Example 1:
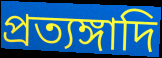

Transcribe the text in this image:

প্রত্যঙ্গাদি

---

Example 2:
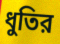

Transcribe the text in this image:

ধুতির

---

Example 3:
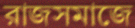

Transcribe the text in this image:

রাজসমাজে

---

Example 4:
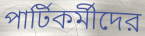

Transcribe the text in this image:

পার্টিকর্মীদের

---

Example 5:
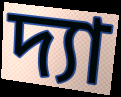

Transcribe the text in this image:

দ্যা